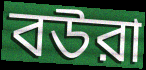
বউরা